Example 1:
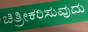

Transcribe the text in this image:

ಚಿತ್ರೀಕರಿಸುವುದು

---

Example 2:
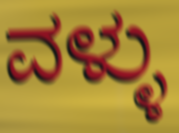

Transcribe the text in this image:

ವಳ್ಳು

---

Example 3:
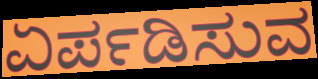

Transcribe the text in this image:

ಏರ್ಪಡಿಸುವ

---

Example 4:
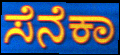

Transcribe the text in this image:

ಸೆನೆಕಾ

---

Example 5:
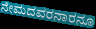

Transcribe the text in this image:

ನೇಮದವರನಾರನೂ